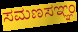
ಸಮಣಸಞ್ಞಂ